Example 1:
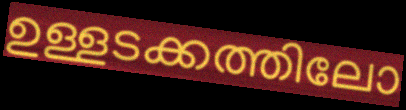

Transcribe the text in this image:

ഉള്ളടക്കത്തിലോ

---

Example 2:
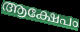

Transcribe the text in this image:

ആക്ഷേപം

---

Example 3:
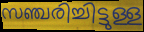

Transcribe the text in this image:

സഞ്ചരിച്ചിട്ടുള്ള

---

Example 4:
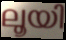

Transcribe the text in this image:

ലൂയി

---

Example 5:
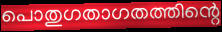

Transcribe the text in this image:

പൊതുഗതാഗതത്തിന്റെ